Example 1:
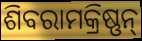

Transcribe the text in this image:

ଶିବରାମକ୍ରିଷ୍ଣନ୍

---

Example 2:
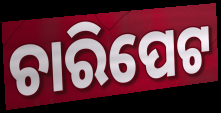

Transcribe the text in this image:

ଚାରିପେଟ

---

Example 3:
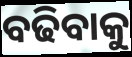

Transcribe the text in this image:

ବଢିବାକୁ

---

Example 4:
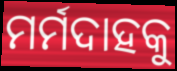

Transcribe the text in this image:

ମର୍ମଦାହକୁ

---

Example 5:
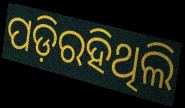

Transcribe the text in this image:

ପଡ଼ିରହିଥିଲି